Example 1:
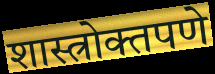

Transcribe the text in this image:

शास्त्रोक्तपणे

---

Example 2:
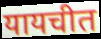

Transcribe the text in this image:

यायचीत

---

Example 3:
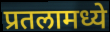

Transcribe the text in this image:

प्रतलामध्ये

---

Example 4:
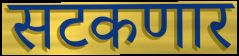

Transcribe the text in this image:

सटकणार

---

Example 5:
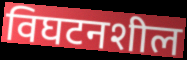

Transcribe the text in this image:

विघटनशील